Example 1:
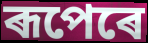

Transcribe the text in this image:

ৰূপেৰে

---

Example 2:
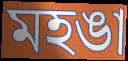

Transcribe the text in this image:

মহঙা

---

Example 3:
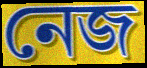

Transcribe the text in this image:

নেজ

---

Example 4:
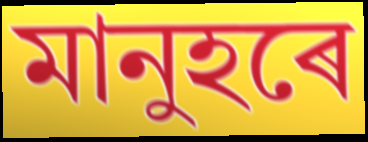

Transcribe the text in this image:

মানুহৰে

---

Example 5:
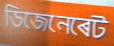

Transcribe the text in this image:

ডিজেনেৰেট